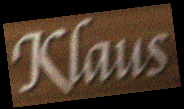
Klaus